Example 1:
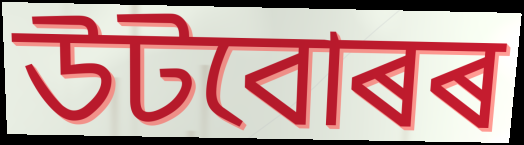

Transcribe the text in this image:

উটবোৰৰ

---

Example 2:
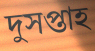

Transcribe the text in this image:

দুসপ্তাহ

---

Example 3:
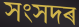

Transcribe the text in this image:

সংসদৰ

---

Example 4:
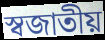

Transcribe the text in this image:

স্বজাতীয়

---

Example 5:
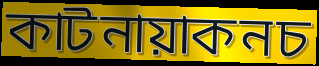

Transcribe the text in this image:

কাটনায়াকনচ